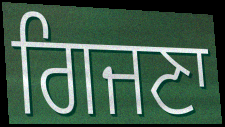
ਗਿਜਣਾ